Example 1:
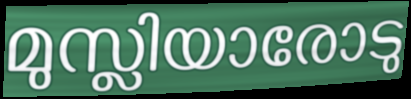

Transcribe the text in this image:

മുസ്ലിയാരോടു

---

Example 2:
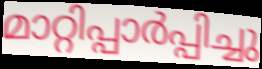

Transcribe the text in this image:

മാറ്റിപ്പാർപ്പിച്ചു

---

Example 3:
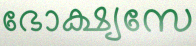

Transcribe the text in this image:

ഭോക്ഷ്യസേ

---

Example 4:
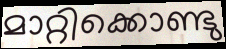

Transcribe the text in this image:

മാറ്റിക്കൊണ്ടു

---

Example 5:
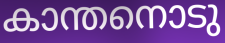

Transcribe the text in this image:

കാന്തനൊടു